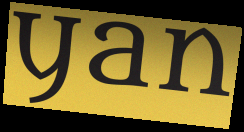
yan